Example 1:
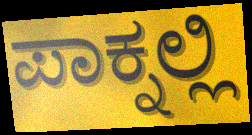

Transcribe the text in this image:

ಪಾಕ್ನಲ್ಲಿ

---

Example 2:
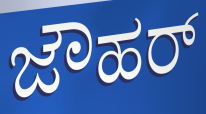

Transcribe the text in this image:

ಜೌಹರ್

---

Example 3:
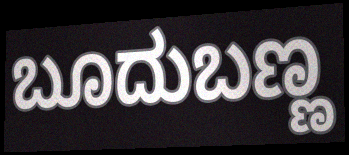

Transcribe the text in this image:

ಬೂದುಬಣ್ಣ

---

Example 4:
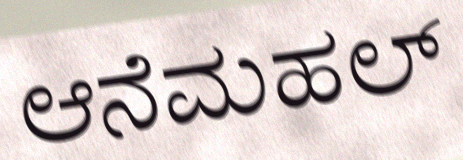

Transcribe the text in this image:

ಆನೆಮಹಲ್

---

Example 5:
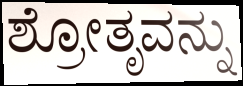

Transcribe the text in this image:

ಶ್ರೋತೃವನ್ನು